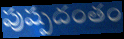
పుష్పదంతం